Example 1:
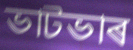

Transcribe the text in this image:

ভাটভাৰ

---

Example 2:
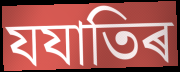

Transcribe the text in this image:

যযাতিৰ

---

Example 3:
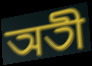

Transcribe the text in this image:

অতী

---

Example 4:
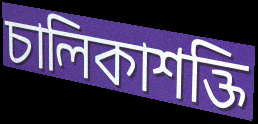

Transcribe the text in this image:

চালিকাশক্তি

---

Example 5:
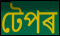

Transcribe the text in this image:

টেপৰ